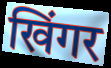
खिंगर